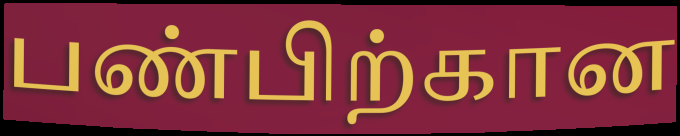
பண்பிற்கான